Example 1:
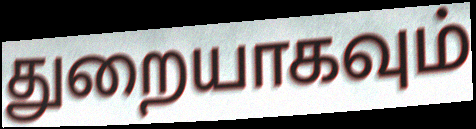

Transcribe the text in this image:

துறையாகவும்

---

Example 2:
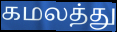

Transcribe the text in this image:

கமலத்து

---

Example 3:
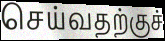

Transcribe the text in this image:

செய்வதற்குச்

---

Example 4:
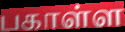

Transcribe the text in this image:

பகாள்ள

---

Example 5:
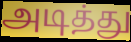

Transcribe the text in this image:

அடித்து